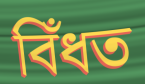
বিঁধত